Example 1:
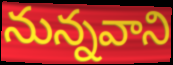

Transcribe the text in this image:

నున్నవాని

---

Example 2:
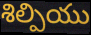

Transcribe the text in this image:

శిల్పియు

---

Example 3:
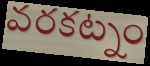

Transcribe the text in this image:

వరకట్నం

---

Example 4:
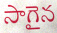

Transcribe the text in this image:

సాగైన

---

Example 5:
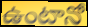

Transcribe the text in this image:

ఉంటానో